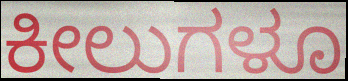
ಕೀಲುಗಳೂ